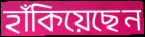
হাঁকিয়েছেন